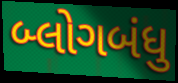
બ્લોગબંધુ